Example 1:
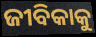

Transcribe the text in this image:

ଜୀବିକାକୁ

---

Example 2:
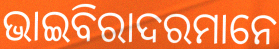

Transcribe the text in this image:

ଭାଇବିରାଦରମାନେ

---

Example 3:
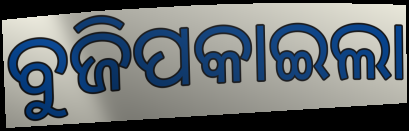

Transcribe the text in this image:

ବୁଜିପକାଇଲା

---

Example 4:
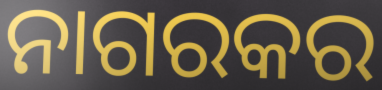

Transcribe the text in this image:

ନାଗରକର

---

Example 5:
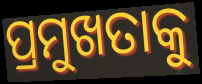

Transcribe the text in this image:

ପ୍ରମୁଖତାକୁ